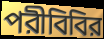
পরীবিবির